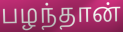
பழந்தான்